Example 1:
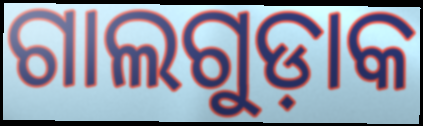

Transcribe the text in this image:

ଗାଲଗୁଡ଼ାକ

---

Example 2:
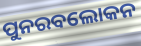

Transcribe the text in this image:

ପୁନରବଲୋକନ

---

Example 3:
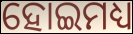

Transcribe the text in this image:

ହୋଇମଧ୍ୟ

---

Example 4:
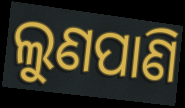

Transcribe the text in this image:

ଲୁଣପାଣି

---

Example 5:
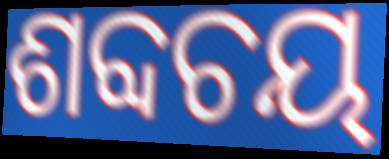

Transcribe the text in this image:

ଶବ୍ଦଚୟ